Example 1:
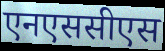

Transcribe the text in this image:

एनएससीएस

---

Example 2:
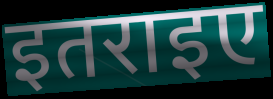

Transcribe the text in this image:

इतराइए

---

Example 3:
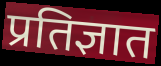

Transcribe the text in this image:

प्रतिज्ञात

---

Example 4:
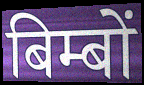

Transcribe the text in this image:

बिम्बों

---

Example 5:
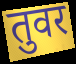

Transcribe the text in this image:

तुवर